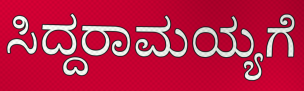
ಸಿದ್ದರಾಮಯ್ಯಗೆ